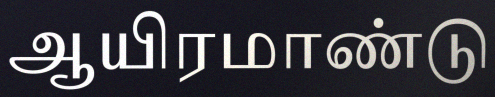
ஆயிரமாண்டு